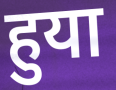
हुया